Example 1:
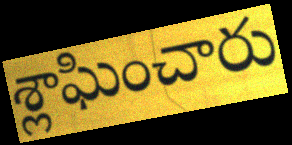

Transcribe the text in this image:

శ్లాఘించారు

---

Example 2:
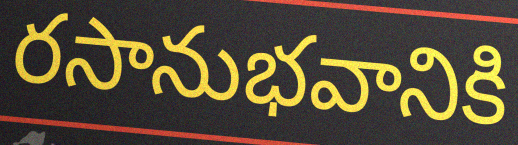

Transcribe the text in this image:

రసానుభవానికి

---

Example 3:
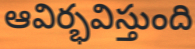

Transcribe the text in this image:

ఆవిర్భవిస్తుంది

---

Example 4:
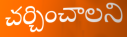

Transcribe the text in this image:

చర్చించాలని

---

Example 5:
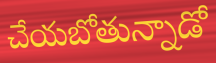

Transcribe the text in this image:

చేయబోతున్నాడో